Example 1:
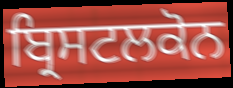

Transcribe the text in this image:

ਬ੍ਰਿਸਟਲਕੋਨ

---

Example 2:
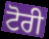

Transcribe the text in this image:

ਟੋਰੀ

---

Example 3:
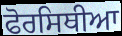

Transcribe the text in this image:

ਫੋਰਸਿਥੀਆ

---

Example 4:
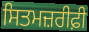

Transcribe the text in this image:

ਸਿਤਮਜ਼ਰੀਫ਼ੀ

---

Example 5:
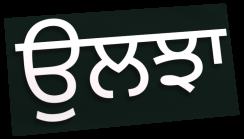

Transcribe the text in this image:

ਉਲਝਾ